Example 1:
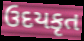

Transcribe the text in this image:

ઉદયકૃત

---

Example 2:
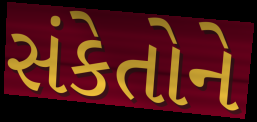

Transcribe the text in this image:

સંકેતોને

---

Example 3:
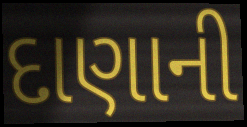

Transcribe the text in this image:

દાણાની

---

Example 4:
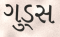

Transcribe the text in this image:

ગુડ્સ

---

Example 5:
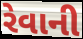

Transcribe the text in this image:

રેવાની